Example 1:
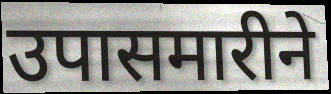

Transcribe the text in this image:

उपासमारीने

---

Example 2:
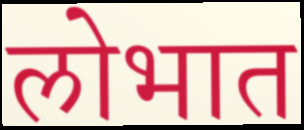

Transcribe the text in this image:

लोभात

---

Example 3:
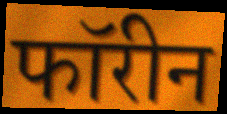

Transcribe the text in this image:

फॉरीन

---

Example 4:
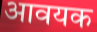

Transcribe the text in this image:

आवयक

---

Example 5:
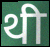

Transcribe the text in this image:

थी